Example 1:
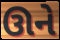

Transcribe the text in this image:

ઊને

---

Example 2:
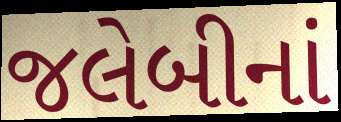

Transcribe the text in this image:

જલેબીનાં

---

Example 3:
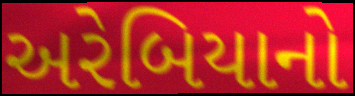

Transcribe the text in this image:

અરેબિયાનો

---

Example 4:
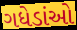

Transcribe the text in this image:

ગધેડાંઓ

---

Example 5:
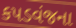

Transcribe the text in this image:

કપડવંજના